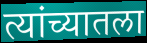
त्यांच्यातला